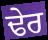
ਢੇਰ